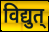
विद्युत्